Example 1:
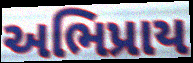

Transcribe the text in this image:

અભિપ્રાય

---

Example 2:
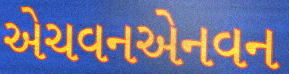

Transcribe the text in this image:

એચવનએનવન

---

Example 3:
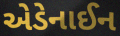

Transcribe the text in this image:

એડેનાઈન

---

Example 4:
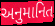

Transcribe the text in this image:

અનુમાનિત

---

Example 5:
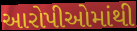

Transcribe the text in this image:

આરોપીઓમાંથી